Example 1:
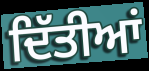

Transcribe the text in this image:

ਦਿੱਤੀਆਂ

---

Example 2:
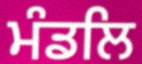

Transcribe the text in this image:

ਮੰਡਲਿ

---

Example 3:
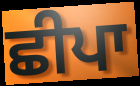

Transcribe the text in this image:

ਛੀਪਾ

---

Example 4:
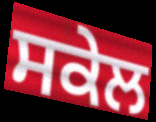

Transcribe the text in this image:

ਸਕੇਲ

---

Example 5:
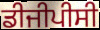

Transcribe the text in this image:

ਡੀਜੀਪੀਸੀ